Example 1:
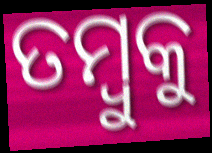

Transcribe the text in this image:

ତମ୍ବୁକୁ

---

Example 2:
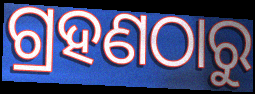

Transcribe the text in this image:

ଗ୍ରହଣଠାରୁ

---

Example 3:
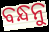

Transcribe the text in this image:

ବନ୍ଧନୁ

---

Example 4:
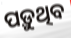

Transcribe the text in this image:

ପଡ଼ୁଥିବ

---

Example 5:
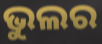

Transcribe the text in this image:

ଭୁଲର